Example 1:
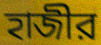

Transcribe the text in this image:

হাজীর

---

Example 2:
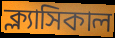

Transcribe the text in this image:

ক্ল্যাসিকাল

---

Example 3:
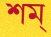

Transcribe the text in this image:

শম্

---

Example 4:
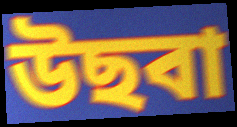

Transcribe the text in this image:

উছবা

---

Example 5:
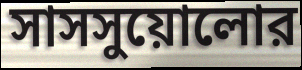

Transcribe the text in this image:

সাসসুয়োলোর